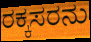
ರಕ್ಕಸರನು